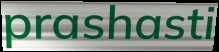
prashasti